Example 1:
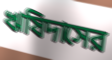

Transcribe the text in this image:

ঋষিদাসের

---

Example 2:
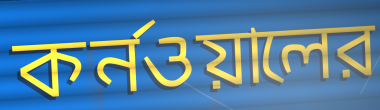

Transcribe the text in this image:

কর্নওয়ালের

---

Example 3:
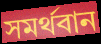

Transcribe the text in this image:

সমর্থবান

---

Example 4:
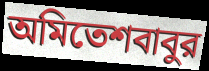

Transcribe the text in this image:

অমিতেশবাবুর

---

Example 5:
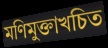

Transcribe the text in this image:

মণিমুক্তাখচিত